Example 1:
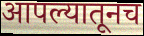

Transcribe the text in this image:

आपल्यातूनच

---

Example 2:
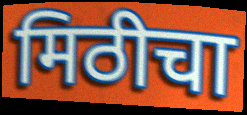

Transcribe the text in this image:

मिठीचा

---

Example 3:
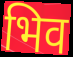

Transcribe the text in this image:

भिव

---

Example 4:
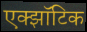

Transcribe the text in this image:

एक्झॉटिक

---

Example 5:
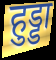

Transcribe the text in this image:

हुड्डा